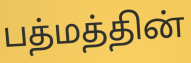
பத்மத்தின்